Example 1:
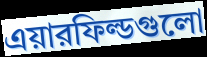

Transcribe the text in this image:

এয়ারফিল্ডগুলো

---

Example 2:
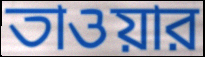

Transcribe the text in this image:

তাওয়ার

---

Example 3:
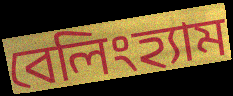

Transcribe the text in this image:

বেলিংহ্যাম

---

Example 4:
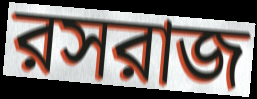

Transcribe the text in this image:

রসরাজ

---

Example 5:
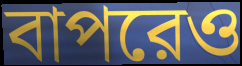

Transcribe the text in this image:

বাপরেও